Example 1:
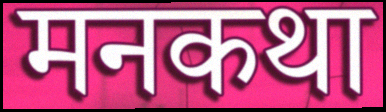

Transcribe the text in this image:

मनकथा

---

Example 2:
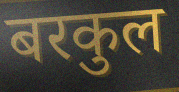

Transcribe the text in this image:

बरकुल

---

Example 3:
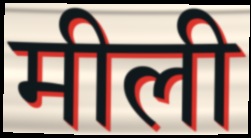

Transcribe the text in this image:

मीली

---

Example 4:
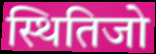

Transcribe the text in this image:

स्थितिजो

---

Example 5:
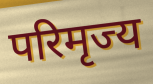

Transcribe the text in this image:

परिमृज्य